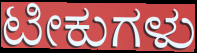
ಟೀಕುಗಳು